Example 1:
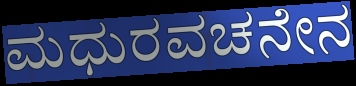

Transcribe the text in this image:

ಮಧುರವಚನೇನ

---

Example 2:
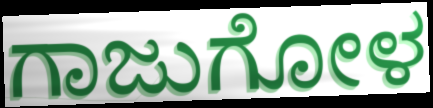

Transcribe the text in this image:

ಗಾಜುಗೋಳ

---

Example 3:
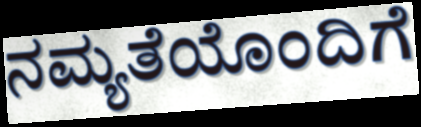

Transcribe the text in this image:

ನಮ್ಯತೆಯೊಂದಿಗೆ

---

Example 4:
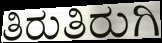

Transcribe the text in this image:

ತಿರುತಿರುಗಿ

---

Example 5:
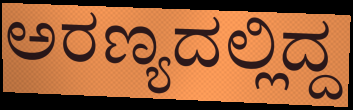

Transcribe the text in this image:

ಅರಣ್ಯದಲ್ಲಿದ್ದ